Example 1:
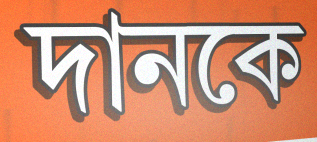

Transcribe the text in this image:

দানকে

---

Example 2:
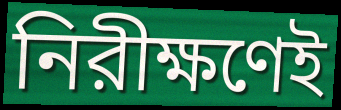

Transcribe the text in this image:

নিরীক্ষণেই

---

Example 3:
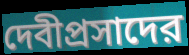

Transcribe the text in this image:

দেবীপ্রসাদের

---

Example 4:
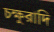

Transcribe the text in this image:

চক্ষুরাদি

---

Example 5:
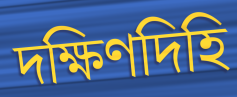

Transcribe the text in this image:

দক্ষিণদিহি